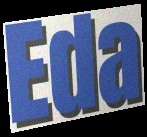
Eda